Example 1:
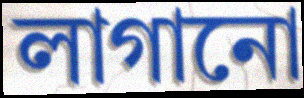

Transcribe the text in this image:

লাগানো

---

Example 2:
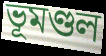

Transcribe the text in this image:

ভূমণ্ডল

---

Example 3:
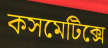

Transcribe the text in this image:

কসমেটিক্সে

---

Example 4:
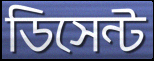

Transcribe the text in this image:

ডিসেন্ট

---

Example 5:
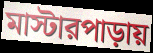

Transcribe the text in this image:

মাস্টারপাড়ায়